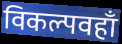
विकल्पवहाँ